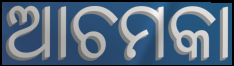
ଆଚମକା